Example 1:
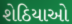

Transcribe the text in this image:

શેઠિયાઓ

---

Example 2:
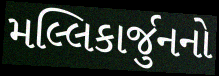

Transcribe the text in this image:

મલ્લિકાર્જુનનો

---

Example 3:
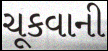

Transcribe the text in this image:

ચૂકવાની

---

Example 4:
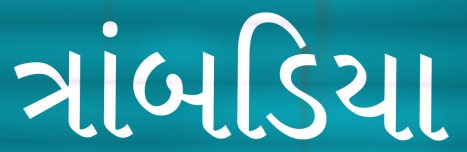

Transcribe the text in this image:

ત્રાંબડિયા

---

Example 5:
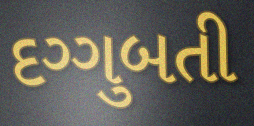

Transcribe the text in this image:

દગ્ગુબતી